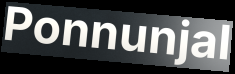
Ponnunjal